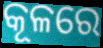
କୂଳରେ